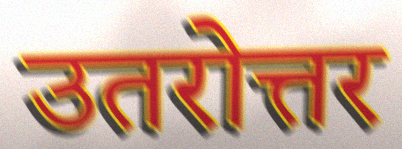
उतरोत्तर